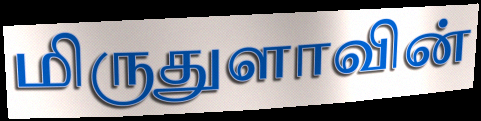
மிருதுளாவின்